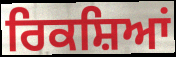
ਰਿਕਸ਼ਿਆਂ